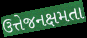
ઉત્તેજનક્ષમતા